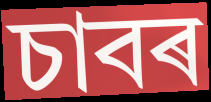
চাবৰ